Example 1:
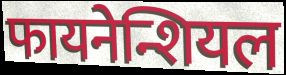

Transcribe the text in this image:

फायनेन्शियल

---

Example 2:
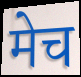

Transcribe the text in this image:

मेच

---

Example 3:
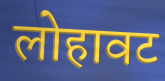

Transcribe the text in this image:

लोहावट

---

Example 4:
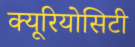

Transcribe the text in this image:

क्यूरियोसिटी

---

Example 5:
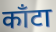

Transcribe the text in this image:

काँटा